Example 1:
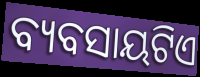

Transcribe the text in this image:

ବ୍ୟବସାୟଟିଏ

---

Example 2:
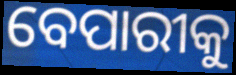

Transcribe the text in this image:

ବେପାରୀକୁ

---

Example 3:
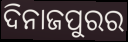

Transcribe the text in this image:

ଦିନାଜପୁରର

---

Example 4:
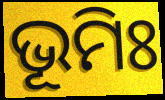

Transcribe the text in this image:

ଭୂମିଃ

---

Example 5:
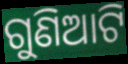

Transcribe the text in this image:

ଗୁଣିଆଟି